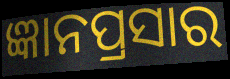
ଜ୍ଞାନପ୍ରସାର